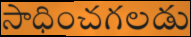
సాధించగలడు